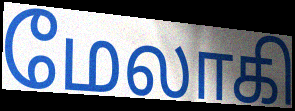
மேலாகி